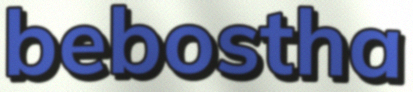
bebostha